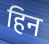
हिन